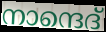
നാന്ദെദ്